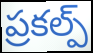
ప్రకల్ప్